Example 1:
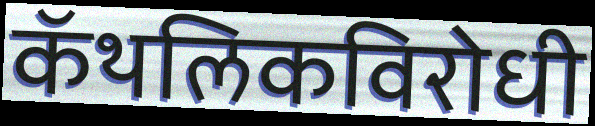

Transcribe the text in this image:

कॅथलिकविरोधी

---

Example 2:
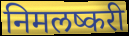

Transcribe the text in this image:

निमलष्करी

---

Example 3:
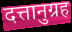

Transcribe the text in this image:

दत्तानुग्रह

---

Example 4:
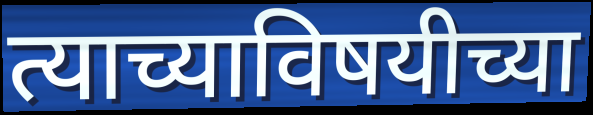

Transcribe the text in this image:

त्याच्याविषयीच्या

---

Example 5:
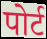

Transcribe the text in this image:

पोर्ट